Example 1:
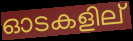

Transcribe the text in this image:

ഓടകളില്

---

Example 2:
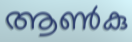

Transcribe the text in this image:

ആൺകു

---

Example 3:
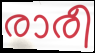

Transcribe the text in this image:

രാരീ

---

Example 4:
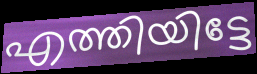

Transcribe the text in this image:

എത്തിയിട്ടേ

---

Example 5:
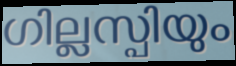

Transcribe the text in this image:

ഗില്ലസ്പിയും